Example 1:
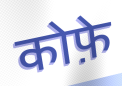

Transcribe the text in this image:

कोफ़े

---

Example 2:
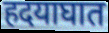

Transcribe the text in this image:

हदयाघात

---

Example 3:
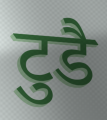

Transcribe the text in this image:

टुडै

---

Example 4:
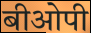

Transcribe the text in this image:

बीओपी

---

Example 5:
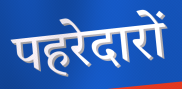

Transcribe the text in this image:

पहरेदारों